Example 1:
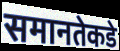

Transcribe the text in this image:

समानतेकडे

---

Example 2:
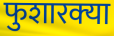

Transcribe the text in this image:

फुशारक्‍या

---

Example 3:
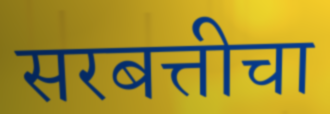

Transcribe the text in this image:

सरबत्तीचा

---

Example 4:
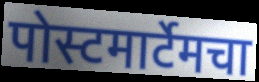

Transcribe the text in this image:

पोस्टमार्टेमचा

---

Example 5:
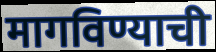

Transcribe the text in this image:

मागविण्याची